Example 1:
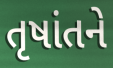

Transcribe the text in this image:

તૃષાંતને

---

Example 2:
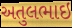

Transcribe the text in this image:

અતુલભાઇ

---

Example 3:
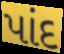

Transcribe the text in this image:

પાંદ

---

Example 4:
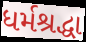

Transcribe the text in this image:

ધર્મશ્રદ્ધા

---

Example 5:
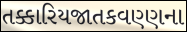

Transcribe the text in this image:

તક્કારિયજાતકવણ્ણના